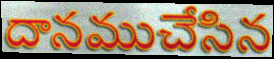
దానముచేసిన